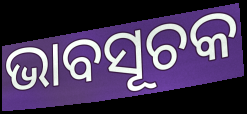
ଭାବସୂଚକ